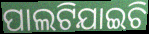
ପାଲଟିଯାଇଚି